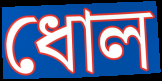
ধোল